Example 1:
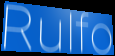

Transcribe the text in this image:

Rulfo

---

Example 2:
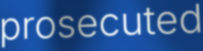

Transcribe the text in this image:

prosecuted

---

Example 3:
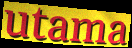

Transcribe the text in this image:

utama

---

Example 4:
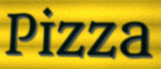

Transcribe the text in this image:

Pizza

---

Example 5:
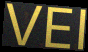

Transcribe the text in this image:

VEI